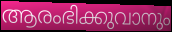
ആരംഭിക്കുവാനും